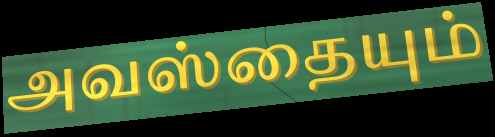
அவஸ்தையும்